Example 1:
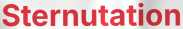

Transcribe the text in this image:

Sternutation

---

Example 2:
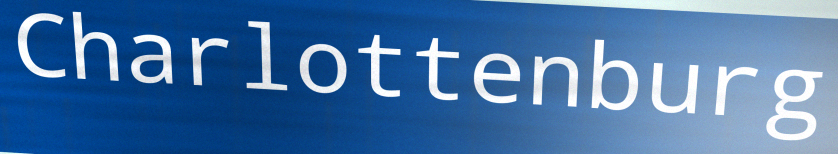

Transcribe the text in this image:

Charlottenburg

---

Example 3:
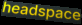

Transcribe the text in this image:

headspace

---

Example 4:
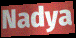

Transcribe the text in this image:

Nadya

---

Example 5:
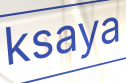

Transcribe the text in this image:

ksaya